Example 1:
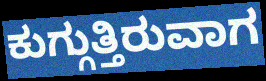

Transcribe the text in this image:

ಕುಗ್ಗುತ್ತಿರುವಾಗ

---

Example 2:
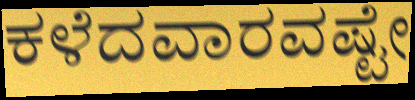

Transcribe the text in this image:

ಕಳೆದವಾರವಷ್ಟೇ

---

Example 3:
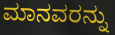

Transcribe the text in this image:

ಮಾನವರನ್ನು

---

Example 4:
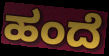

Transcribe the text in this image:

ಹಂದೆ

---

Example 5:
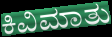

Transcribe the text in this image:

ಕಿವಿಮಾತು